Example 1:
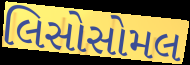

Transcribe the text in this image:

લિસોસોમલ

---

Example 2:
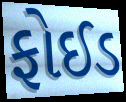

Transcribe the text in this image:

ફોઈડ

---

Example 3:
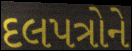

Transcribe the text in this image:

દલપત્રોને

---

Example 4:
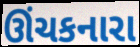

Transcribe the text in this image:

ઊંચકનારા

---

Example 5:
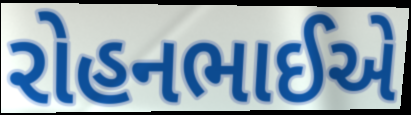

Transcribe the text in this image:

રોહનભાઈએ